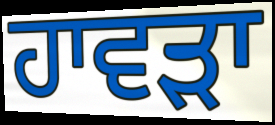
ਹਾਵਡ਼ਾ